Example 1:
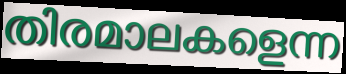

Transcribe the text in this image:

തിരമാലകളെന്ന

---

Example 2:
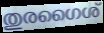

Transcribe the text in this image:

തുരഗൈശ്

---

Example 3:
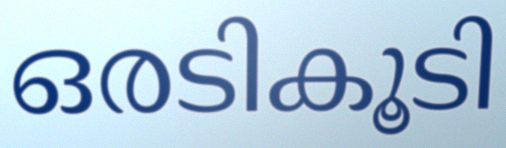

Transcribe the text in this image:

ഒരടികൂടി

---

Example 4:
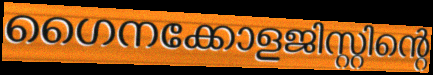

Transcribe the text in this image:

ഗൈനക്കോളജിസ്റ്റിന്റെ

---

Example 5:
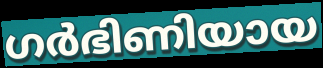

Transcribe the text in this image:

ഗർഭിണിയായ